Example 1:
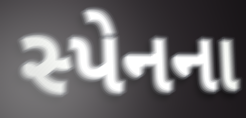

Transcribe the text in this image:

સ્પેનના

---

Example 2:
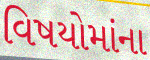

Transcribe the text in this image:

વિષયોમાંના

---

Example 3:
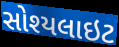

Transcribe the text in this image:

સોશ્યલાઇટ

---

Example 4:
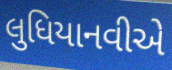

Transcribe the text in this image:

લુધિયાનવીએ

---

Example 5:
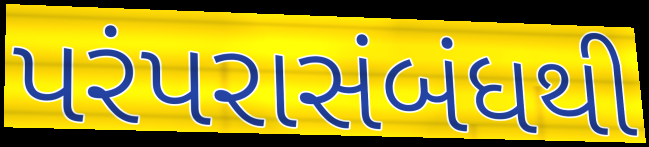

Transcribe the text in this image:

પરંપરાસંબંધથી